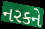
નરકને